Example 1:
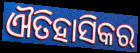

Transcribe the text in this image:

ଐତିହାସିକର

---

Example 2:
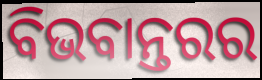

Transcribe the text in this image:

ବିଭବାନ୍ତରର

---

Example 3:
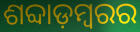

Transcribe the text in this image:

ଶବ୍ଦାଡ଼ମ୍ବରର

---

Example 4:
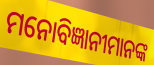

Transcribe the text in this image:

ମନୋବିଜ୍ଞାନୀମାନଙ୍କ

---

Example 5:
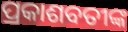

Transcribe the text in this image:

ପ୍ରକାଶବତୀଙ୍କ